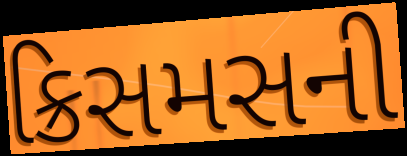
ક્રિસમસની